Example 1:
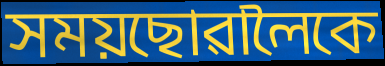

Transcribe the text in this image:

সময়ছোৱালৈকে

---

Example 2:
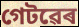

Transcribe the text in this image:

গেটৱেৰ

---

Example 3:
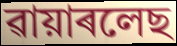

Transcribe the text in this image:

ৱায়াৰলেছ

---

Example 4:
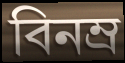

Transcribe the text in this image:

বিনম্ৰ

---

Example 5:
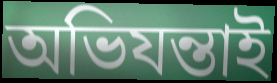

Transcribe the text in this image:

অভিযন্তাই